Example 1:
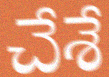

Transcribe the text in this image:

చేశే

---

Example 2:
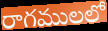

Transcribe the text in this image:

రాగములలో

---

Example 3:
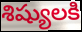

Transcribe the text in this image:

శిష్యులకి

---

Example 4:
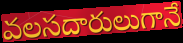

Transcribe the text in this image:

వలసదారులుగానే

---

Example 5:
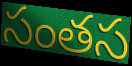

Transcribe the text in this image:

సంతస